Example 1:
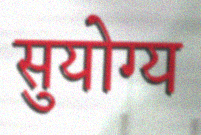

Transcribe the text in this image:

सुयोग्य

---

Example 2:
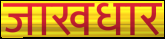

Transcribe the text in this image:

जाखधार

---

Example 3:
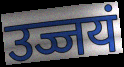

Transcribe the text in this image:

उज्जयं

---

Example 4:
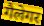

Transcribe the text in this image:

गैलेगर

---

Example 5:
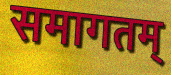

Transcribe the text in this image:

समागतम्